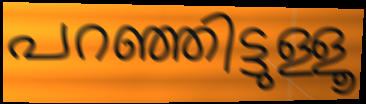
പറഞ്ഞിട്ടുള്ളൂ